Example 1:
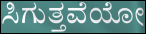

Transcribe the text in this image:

ಸಿಗುತ್ತವೆಯೋ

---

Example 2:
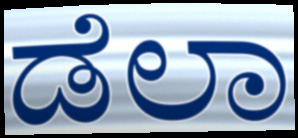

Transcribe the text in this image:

ಡೆಲಾ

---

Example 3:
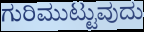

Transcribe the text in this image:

ಗುರಿಮುಟ್ಟುವುದು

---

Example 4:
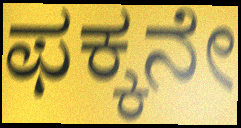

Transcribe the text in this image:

ಫಕ್ಕನೇ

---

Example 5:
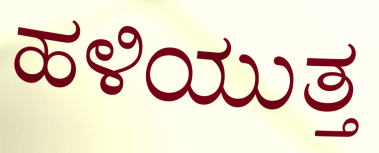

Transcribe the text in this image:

ಹಳಿಯುತ್ತ